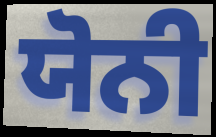
ਯੋਨੀ